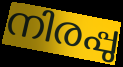
നിരപ്പു